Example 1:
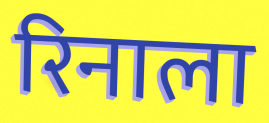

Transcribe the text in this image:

रिनाला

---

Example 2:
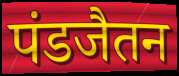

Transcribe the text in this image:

पंडजैतन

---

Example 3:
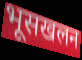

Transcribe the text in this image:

भूसखलन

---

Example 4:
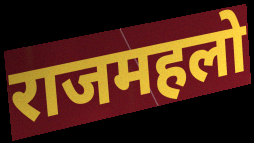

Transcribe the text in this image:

राजमहलो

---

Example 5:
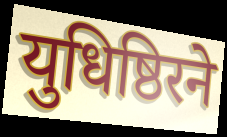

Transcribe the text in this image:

युधिष्ठिरने